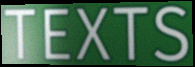
TEXTS